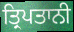
ਤ੍ਰਿਪਤਾਨੀ